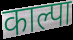
काल्पा